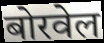
बोरवेल